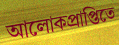
আলোকপ্রাপ্তিতে